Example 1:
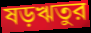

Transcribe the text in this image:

ষড়ঋতুর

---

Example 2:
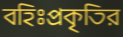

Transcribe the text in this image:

বহিঃপ্রকৃতির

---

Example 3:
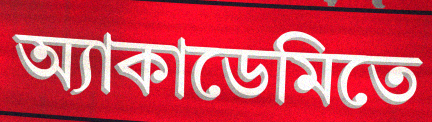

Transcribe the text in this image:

অ্যাকাডেমিতে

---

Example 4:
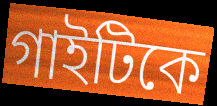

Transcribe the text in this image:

গাইটিকে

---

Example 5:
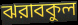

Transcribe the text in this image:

ঝরাবকুল